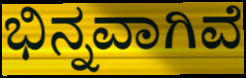
ಭಿನ್ನವಾಗಿವೆ